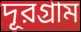
দূরগ্রাম